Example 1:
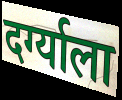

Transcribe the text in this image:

दर्ग्याला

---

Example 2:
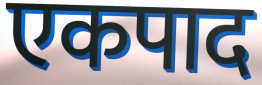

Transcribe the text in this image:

एकपाद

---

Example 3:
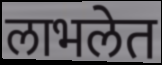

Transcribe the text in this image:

लाभलेत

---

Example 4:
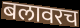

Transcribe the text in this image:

बलावरच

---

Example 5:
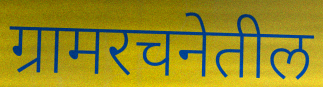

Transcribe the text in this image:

ग्रामरचनेतील